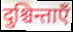
दुश्चिन्ताएँ